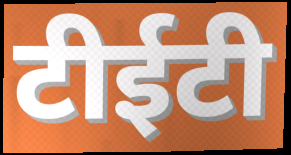
टीईटी